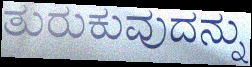
ತುರುಕುವುದನ್ನು